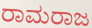
ರಾಮರಾಜ